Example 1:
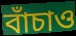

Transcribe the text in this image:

বাঁচাও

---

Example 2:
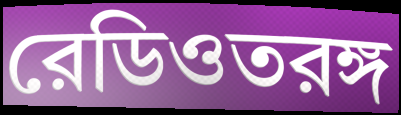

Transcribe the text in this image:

রেডিওতরঙ্গ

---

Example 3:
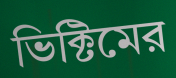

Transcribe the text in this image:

ভিক্টিমের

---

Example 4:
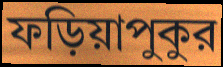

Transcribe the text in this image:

ফড়িয়াপুকুর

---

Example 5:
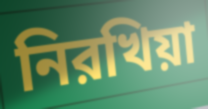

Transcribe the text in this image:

নিরখিয়া